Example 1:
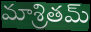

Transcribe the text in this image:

మాశ్రితమ్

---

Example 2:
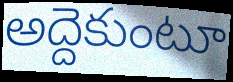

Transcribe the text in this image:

అద్దెకుంటూ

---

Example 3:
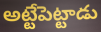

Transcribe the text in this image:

అట్టేపెట్టాడు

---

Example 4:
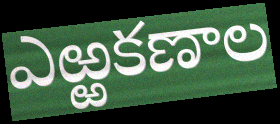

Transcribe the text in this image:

ఎఱ్ఱకణాల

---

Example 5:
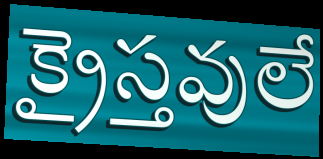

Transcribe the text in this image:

క్రైస్తవులే